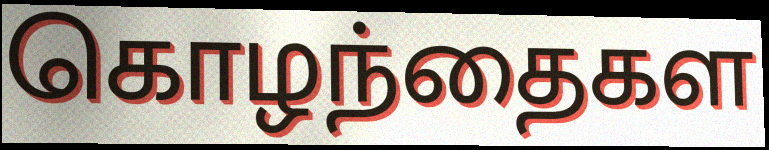
கொழந்தைகள